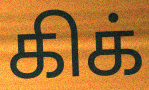
கிக்